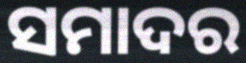
ସମାଦର